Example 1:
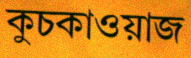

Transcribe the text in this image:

কুচকাওয়াজ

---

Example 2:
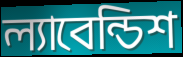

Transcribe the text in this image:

ল্যাবেন্ডিশ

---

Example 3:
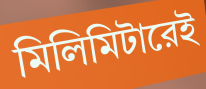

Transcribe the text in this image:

মিলিমিটারেই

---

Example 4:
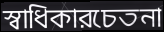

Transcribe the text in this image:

স্বাধিকারচেতনা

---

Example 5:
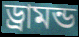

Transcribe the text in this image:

ড্রামন্ড